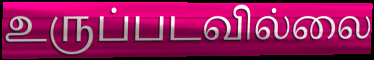
உருப்படவில்லை